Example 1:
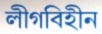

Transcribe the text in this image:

লীগবিহীন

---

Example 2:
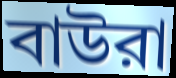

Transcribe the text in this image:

বাউরা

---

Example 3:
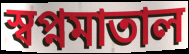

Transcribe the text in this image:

স্বপ্নমাতাল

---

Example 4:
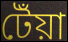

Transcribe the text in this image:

টেঁয়া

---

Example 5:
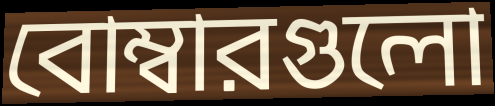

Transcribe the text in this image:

বোম্বারগুলো